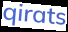
qirats